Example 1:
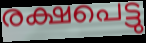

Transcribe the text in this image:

രക്ഷപെട്ടു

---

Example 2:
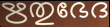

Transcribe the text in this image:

ഋതുഭേദ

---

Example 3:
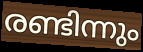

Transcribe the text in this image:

രണ്ടിന്നും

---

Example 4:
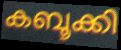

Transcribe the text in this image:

കബൂക്കി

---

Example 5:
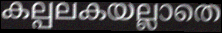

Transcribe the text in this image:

കല്പലകയല്ലാതെ